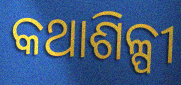
କଥାଶିଳ୍ପୀ